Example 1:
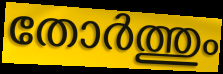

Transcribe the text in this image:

തോർത്തും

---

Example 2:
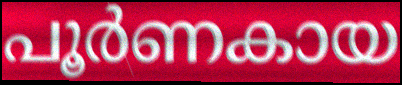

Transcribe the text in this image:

പൂർണകായ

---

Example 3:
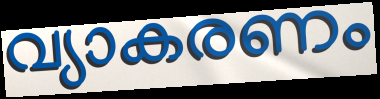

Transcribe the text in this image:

വ്യാകരണം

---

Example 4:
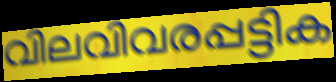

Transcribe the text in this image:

വിലവിവരപ്പട്ടിക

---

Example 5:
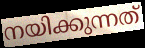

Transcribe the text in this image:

നയിക്കുന്നത്